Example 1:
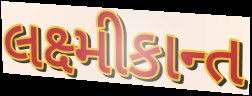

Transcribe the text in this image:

લક્ષ્મીકાન્ત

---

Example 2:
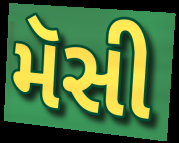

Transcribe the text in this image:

મૅસી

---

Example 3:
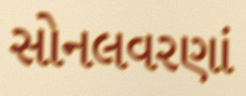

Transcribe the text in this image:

સોનલવરણાં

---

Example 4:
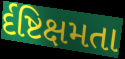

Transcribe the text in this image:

ર્દષ્ટિક્ષમતા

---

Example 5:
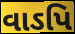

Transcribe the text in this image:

વાઽપિ